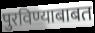
पुरविण्याबाबत